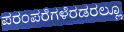
ಪರಂಪರೆಗಳೆರಡರಲ್ಲೂ